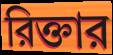
রিক্তার